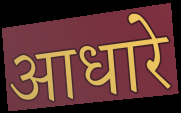
आधारे